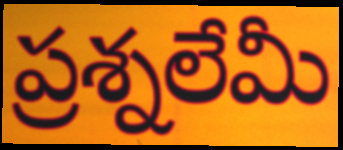
ప్రశ్నలేమీ